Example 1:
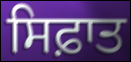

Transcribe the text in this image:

ਸਿਫ਼ਾਤ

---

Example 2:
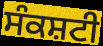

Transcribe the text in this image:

ਸੰਕਸ਼ਟੀ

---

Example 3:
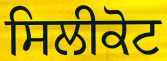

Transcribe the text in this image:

ਸਿਲੀਕੋਟ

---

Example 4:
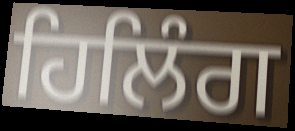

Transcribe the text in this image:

ਹਿਲਿੰਗ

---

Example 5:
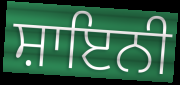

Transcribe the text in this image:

ਸ਼ਾਇਨੀ